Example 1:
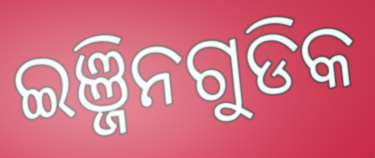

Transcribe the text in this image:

ଇଞ୍ଜିନଗୁଡିକ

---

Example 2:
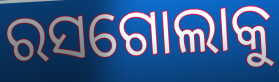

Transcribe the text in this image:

ରସଗୋଲାକୁ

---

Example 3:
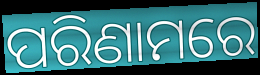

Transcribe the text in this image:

ପରିଣାମରେ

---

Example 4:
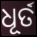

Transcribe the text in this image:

ଧୂର୍ତ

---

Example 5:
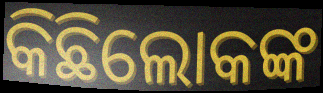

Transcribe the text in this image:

କିଛିଲୋକଙ୍କ